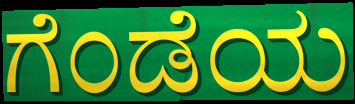
ಗೆಂಡೆಯ